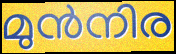
മുൻനിര